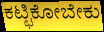
ಕಟ್ಟಿಕೋಬೇಕು